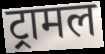
ट्रामल